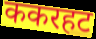
ककरहट